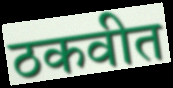
ठकवीत